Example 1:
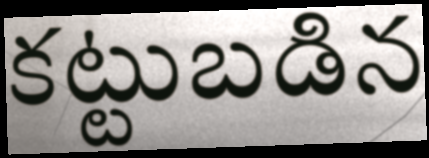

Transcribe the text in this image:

కట్టుబడిన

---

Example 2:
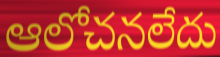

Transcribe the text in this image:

ఆలోచనలేదు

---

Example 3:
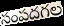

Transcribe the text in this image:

సంపదగల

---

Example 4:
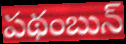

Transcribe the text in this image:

పథంబున్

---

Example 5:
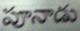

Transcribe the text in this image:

పూనాడు